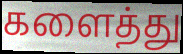
களைத்து